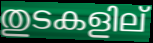
തുടകളില്